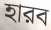
হারব